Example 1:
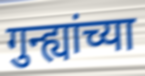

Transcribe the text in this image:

गुन्ह्यांच्या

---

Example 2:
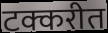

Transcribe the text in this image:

टक्करीत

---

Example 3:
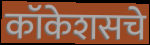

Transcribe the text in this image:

कॉकेशसचे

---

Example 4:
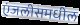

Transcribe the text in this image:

एंजलीसमधील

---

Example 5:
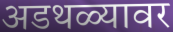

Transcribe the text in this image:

अडथळ्यावर